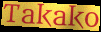
Takako